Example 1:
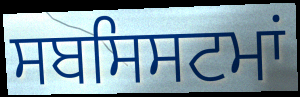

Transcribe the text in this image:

ਸਬਸਿਸਟਮਾਂ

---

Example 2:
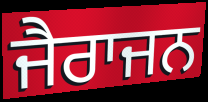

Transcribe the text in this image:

ਜੈਰਾਜਨ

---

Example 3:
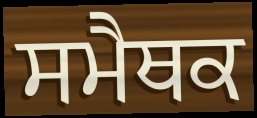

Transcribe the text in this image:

ਸਮੈਥਕ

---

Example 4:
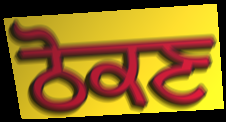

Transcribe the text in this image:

ਠੋਕਣ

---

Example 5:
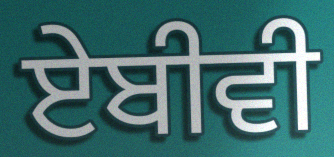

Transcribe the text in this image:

ਏਬੀਵੀ